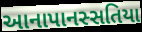
આનાપાનસ્સતિયા